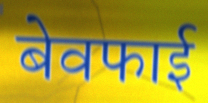
बेवफाई